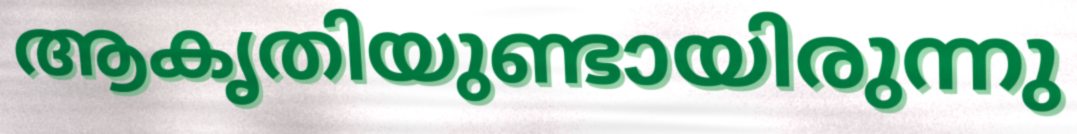
ആകൃതിയുണ്ടായിരുന്നു